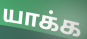
யாக்க